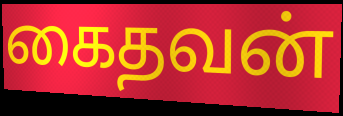
கைதவன்